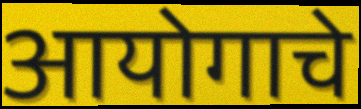
आयोगाचे